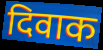
दिवाक